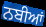
ਨਬੀਆਂ